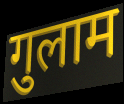
गुलाम